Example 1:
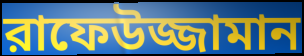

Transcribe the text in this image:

রাফেউজ্জামান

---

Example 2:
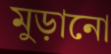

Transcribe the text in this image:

মুড়ানো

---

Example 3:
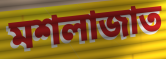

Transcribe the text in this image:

মশলাজাত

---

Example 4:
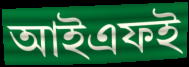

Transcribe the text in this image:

আইএফই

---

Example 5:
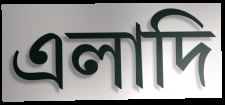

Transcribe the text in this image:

এলাদি